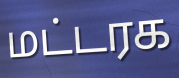
மட்டரக